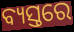
ବ୍ୟସ୍ତରେ